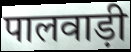
पालवाड़ी